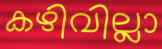
കഴിവില്ലാ